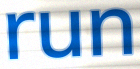
run